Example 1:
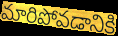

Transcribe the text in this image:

మారిపోవడానికి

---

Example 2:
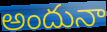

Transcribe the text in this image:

అందునా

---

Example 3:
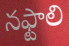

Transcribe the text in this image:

నఫ్టాలి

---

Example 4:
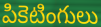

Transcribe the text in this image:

పికెటింగులు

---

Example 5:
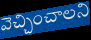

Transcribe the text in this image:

వెచ్చించాలని